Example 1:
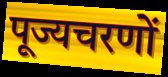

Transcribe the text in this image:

पूज्यचरणों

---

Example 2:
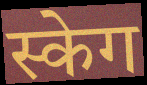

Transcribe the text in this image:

स्केग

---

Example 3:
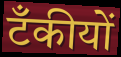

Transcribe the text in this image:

टँकीयों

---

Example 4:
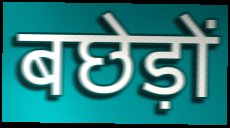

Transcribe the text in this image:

बछेड़ों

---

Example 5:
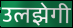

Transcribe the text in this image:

उलझेगी